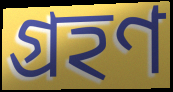
গ্রহণ